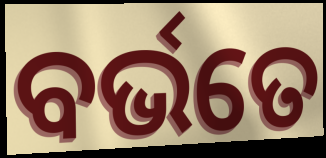
ବର୍ଭତେ